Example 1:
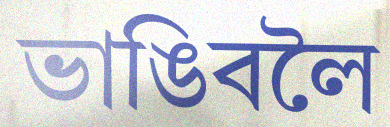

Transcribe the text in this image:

ভাঙিবলৈ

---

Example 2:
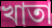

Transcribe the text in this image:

খাতা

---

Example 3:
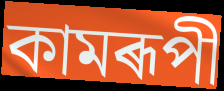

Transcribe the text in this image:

কামৰূপী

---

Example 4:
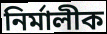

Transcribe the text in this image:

নিৰ্মালীক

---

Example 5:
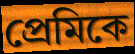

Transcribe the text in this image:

প্ৰেমিকে